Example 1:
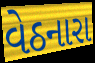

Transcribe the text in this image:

વેઠનારા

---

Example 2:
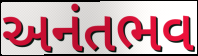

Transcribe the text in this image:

અનંતભવ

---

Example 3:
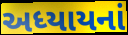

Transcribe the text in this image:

અધ્યાયનાં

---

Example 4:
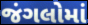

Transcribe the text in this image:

જંગલોમાં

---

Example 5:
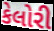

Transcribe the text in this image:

કેલોરી